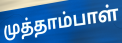
முத்தாம்பாள்